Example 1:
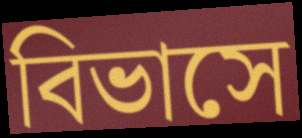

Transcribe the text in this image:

বিভাসে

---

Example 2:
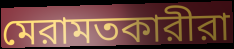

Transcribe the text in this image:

মেরামতকারীরা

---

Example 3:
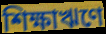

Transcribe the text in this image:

শিক্ষাঋণে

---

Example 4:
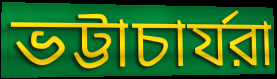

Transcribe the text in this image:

ভট্টাচার্যরা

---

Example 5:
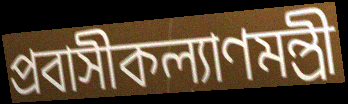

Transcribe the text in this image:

প্রবাসীকল্যাণমন্ত্রী